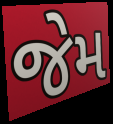
જેમ